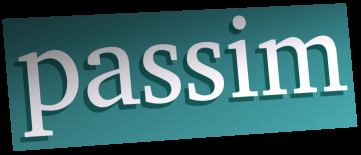
passim